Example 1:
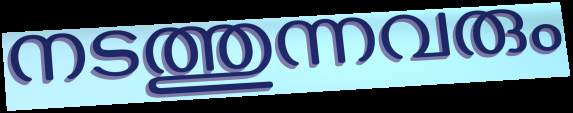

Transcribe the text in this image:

നടത്തുന്നവരും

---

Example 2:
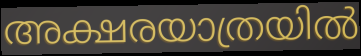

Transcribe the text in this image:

അക്ഷരയാത്രയിൽ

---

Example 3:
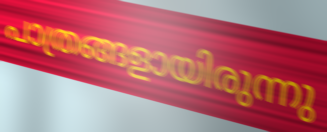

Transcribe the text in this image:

പാത്രങ്ങളായിരുന്നു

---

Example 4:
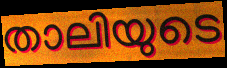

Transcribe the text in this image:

താലിയുടെ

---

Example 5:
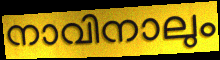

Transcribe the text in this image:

നാവിനാലും